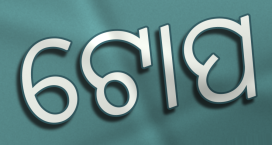
ଟୋପ